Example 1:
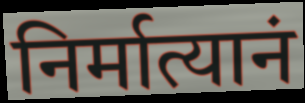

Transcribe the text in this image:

निर्मात्यानं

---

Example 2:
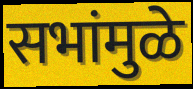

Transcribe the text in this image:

सभांमुळे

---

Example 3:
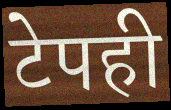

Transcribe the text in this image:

टेपही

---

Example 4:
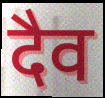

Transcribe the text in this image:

दैव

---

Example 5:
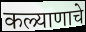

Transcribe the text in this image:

कल्याणाचे